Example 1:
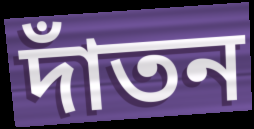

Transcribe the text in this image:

দাঁতন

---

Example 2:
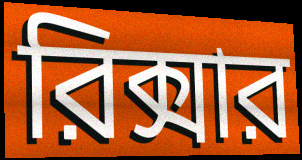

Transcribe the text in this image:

রিক্সার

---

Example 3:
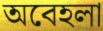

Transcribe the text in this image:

অবেহলা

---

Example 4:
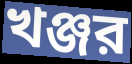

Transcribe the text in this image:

খঞ্জর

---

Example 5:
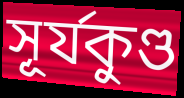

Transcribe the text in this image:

সূর্যকুণ্ড